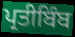
ਪ੍ਰਤੀਬਿੰਬ